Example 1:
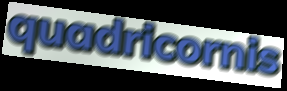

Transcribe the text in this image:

quadricornis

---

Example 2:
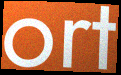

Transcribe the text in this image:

ort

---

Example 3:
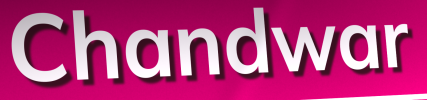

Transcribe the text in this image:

Chandwar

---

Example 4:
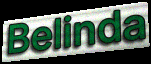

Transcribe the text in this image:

Belinda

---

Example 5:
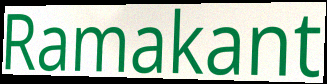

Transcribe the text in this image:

Ramakant